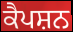
ਕੈਪਸ਼ਨ